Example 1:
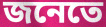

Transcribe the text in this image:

জনেতে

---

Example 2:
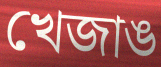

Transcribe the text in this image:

খেজাঙ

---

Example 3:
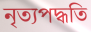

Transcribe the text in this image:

নৃত্যপদ্ধতি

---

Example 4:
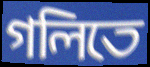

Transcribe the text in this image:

গলিতে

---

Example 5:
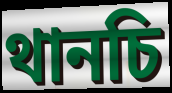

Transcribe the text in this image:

থানচি